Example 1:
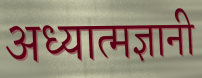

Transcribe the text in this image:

अध्यात्मज्ञानी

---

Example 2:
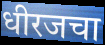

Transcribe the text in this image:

धीरजचा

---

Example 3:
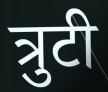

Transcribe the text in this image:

त्रुटी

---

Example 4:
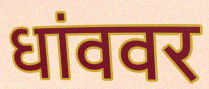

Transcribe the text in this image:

धांववर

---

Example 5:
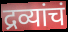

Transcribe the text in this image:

द्रव्यांचं